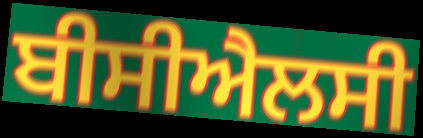
ਬੀਸੀਐਲਸੀ